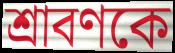
শ্রাবণকে